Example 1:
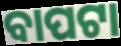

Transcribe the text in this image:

ବାପଟା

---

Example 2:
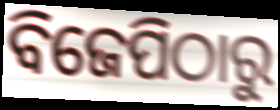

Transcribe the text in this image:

ବିଜେପିଠାରୁ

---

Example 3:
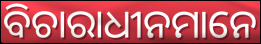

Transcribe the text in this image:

ବିଚାରାଧୀନମାନେ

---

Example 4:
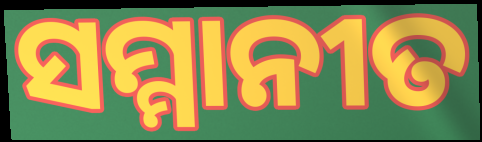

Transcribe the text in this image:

ସମ୍ମାନୀତ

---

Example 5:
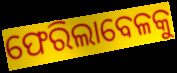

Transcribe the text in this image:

ଫେରିଲାବେଳକୁ